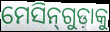
ମେସିନ୍‌ଗୁଡ଼ାକୁ